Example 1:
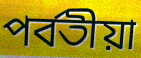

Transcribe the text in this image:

পৰ্বতীয়া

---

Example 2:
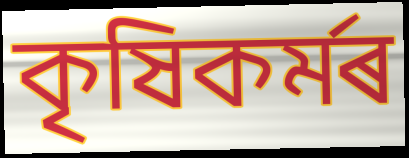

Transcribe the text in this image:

কৃষিকৰ্মৰ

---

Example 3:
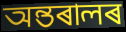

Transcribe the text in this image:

অন্তৰালৰ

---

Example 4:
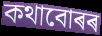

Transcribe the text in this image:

কথাবোৰৰ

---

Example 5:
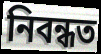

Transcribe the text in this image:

নিবন্ধত